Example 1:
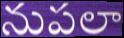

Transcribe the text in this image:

నుపలా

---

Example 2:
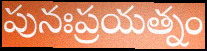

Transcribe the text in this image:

పునఃప్రయత్నం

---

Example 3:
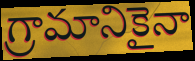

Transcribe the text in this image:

గ్రామానికైనా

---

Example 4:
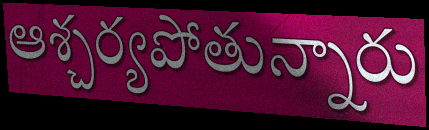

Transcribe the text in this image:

ఆశ్చర్యపోతున్నారు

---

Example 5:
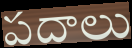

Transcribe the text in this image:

పదాలు